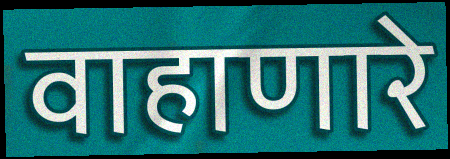
वाहाणारे